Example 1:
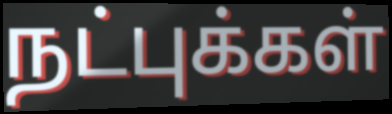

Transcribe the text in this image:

நட்புக்கள்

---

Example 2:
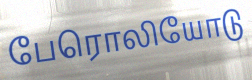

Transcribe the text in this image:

பேரொலியோடு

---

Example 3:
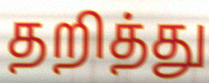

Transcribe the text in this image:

தறித்து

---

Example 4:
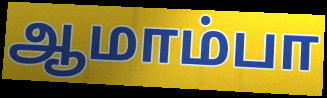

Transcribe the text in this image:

ஆமாம்பா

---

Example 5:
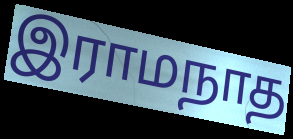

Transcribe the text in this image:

இராமநாத